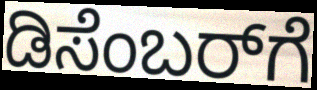
ಡಿಸೆಂಬರ್‌ಗೆ